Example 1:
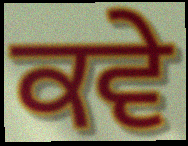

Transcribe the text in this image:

ਕਵੇ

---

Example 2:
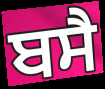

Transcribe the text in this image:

ਬਸੈ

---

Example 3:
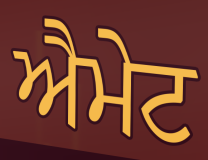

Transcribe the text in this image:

ਐਮੇਟ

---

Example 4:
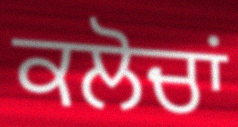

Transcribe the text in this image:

ਕਲੋਚਾਂ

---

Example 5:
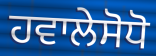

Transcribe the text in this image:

ਹਵਾਲੇਸੋਧੋ